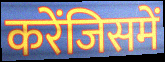
करेंजिसमें